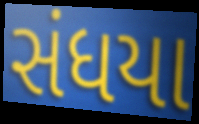
સંધયા